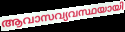
ആവാസവ്യവസ്ഥയായി